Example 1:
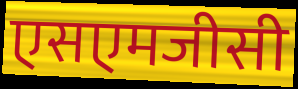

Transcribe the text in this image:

एसएमजीसी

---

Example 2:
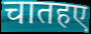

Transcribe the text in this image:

चातहए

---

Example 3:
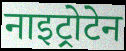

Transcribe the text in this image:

नाइट्रोटेन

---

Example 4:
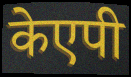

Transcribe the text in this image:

केएपी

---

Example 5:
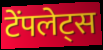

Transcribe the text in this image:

टेंपलेट्स